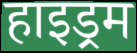
हाइड्रम